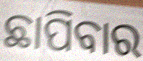
ଛାପିବାର